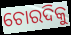
ଚୋରଦିକୁ